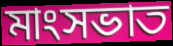
মাংসভাত